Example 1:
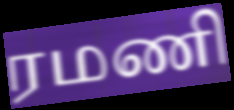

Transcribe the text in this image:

ரமணி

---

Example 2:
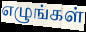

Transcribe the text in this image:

எழுங்கள்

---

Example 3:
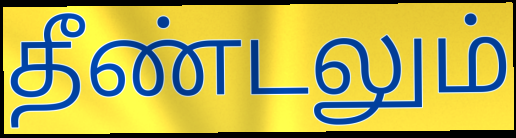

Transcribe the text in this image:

தீண்டலும்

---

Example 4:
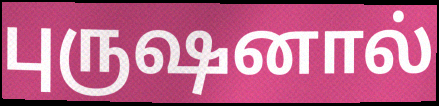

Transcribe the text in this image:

புருஷனால்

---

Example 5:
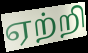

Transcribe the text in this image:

ஏற்றி